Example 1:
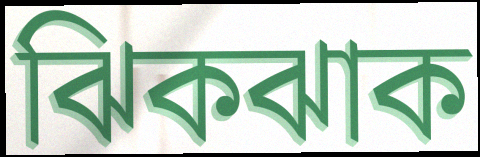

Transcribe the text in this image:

ঝিকঝাক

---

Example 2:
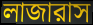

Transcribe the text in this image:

লাজারাস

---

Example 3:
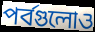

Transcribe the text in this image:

পর্বগুলোও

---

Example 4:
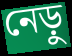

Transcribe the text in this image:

নেড়ু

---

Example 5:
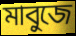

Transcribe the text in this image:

মাবুজে